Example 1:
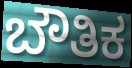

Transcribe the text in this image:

ಬೌತಿಕ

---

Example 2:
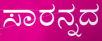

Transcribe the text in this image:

ಸಾರನ್ನದ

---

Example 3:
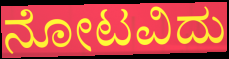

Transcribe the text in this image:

ನೋಟವಿದು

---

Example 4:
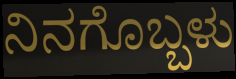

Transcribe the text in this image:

ನಿನಗೊಬ್ಬಳು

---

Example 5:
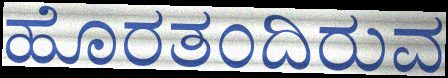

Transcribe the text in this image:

ಹೊರತಂದಿರುವ